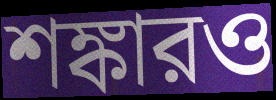
শঙ্কারও